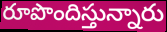
రూపొందిస్తున్నారు